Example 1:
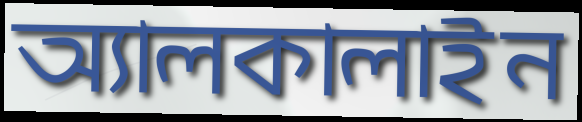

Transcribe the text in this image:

অ্যালকালাইন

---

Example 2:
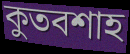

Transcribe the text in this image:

কুতবশাহ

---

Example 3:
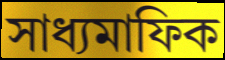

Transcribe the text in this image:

সাধ্যমাফিক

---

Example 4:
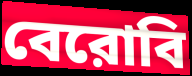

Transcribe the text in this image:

বেরোবি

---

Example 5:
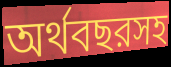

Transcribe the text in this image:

অর্থবছরসহ